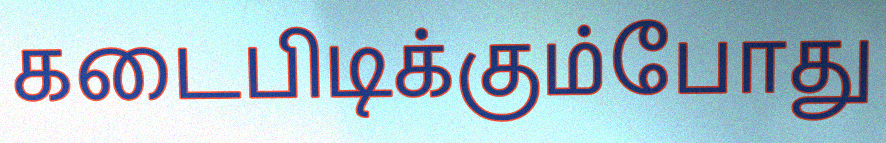
கடைபிடிக்கும்போது